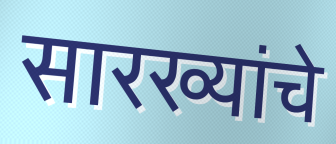
सारख्यांचे